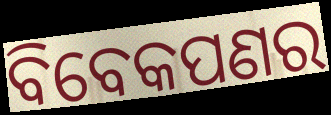
ବିବେକପଣର